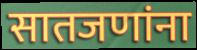
सातजणांना